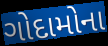
ગોદામોના